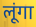
लूंगा